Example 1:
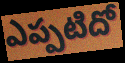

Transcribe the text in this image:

ఎప్పటిదో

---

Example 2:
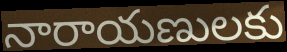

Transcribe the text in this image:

నారాయణులకు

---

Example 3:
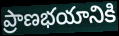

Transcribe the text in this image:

ప్రాణభయానికి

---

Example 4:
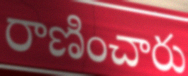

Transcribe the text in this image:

రాణించారు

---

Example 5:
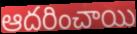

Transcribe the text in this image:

ఆదరించాయి